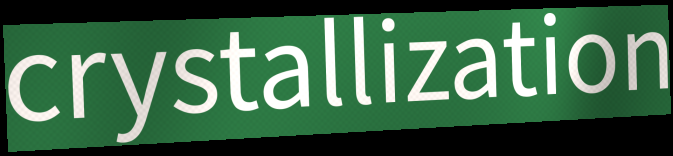
crystallization